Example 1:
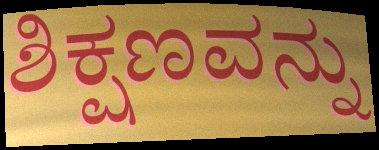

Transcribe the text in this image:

ಶಿಕ್ಷಣವನ್ನು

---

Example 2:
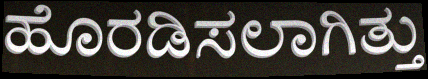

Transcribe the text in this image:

ಹೊರಡಿಸಲಾಗಿತ್ತು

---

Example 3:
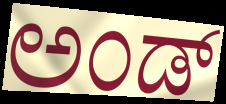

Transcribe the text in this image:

ಅಂಡ್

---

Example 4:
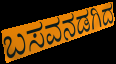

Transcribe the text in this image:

ಬಸವನಡಗಿದ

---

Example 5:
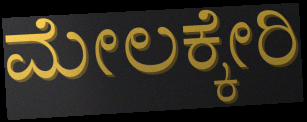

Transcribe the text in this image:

ಮೇಲಕ್ಕೇರಿ